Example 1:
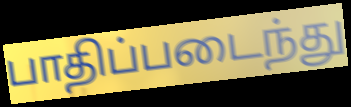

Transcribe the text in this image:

பாதிப்படைந்து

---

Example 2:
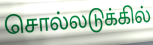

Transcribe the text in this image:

சொல்லடுக்கில்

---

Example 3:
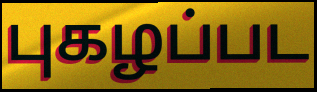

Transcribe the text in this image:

புகழப்பட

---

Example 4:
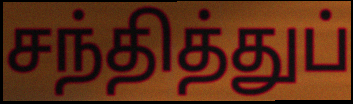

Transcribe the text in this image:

சந்தித்துப்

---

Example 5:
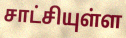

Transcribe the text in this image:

சாட்சியுள்ள